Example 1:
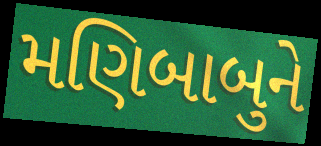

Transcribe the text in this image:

મણિબાબુને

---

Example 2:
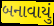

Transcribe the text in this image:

બનાવાયું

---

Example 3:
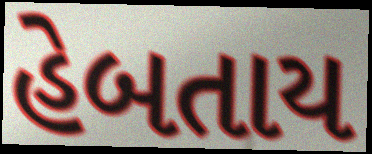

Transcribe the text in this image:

હેબતાય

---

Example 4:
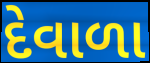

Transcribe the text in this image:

દેવાળા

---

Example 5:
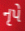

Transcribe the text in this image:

નૃપે